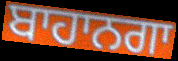
ਬਾਹਾਨਗਾ